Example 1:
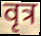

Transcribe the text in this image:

वृत्र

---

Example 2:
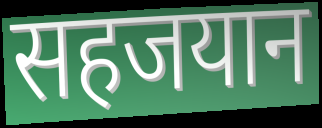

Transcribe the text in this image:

सहजयान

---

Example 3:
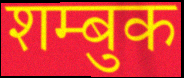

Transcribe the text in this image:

शम्बुक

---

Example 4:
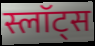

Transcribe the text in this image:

स्लॉट्स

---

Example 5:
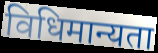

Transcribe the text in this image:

विधिमान्यता